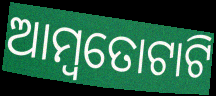
ଆମ୍ବତୋଟାଟି